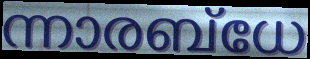
ന്നാരബ്ധേ